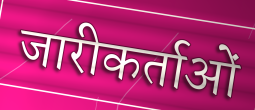
जारीकर्ताओं